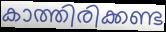
കാത്തിരിക്കണ്ട